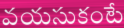
వయసుకంటే